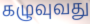
கழுவுவது